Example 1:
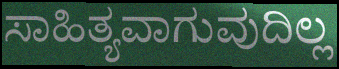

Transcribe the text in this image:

ಸಾಹಿತ್ಯವಾಗುವುದಿಲ್ಲ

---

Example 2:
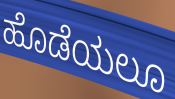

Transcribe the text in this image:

ಹೊಡೆಯಲೂ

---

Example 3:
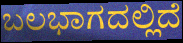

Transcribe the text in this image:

ಬಲಭಾಗದಲ್ಲಿದೆ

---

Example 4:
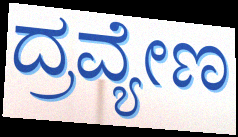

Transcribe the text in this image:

ದ್ರವ್ಯೇಣ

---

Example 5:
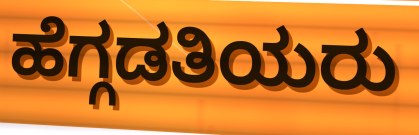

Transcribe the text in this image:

ಹೆಗ್ಗಡತಿಯರು